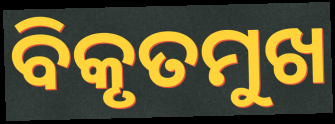
ବିକୃତମୁଖ